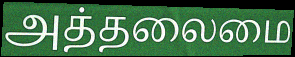
அத்தலைமை